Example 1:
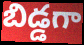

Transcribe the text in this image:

బిడ్డగా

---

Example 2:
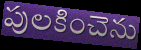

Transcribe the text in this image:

పులకించెను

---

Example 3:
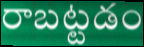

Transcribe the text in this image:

రాబట్టడం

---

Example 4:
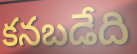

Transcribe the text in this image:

కనబడేది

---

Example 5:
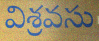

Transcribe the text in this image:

విశ్రవసు